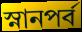
স্নানপর্ব